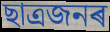
ছাত্ৰজনৰ